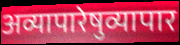
अव्यापारेषुव्यापार